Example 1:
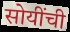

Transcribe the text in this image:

सोयींची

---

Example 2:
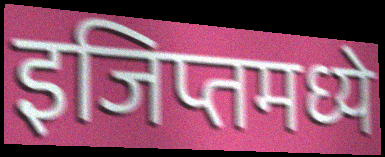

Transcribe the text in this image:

इजिप्तमध्ये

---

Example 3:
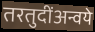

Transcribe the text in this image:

तरतुदींअन्वये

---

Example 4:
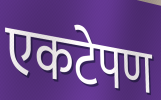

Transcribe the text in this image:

एकटेपण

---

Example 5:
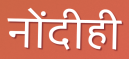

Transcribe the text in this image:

नोंदीही